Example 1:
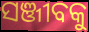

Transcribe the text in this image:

ସଞ୍ଜୀବକୁ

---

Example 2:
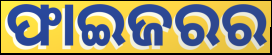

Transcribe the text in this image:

ଫାଇଜରର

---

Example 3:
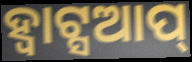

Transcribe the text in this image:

ହ୍ବାଟ୍ସଆପ୍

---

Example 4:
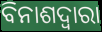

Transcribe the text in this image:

ବିନାଶଦ୍ଵାରା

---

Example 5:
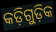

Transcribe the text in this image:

କଡ଼ିଗୁଡ଼ିକ